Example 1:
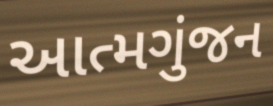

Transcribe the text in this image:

આત્મગુંજન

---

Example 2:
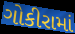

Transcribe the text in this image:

ગોકીરામાં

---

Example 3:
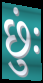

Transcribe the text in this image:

છુંઃ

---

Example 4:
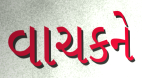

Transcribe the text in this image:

વાચકને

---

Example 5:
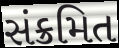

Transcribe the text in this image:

સંક્રમિત